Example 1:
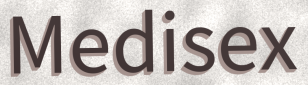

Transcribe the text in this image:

Medisex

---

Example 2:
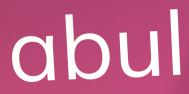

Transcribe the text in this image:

abul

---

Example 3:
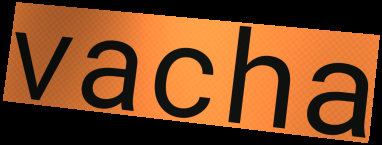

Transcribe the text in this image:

vacha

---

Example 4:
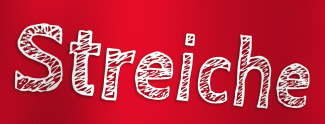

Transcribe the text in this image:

Streiche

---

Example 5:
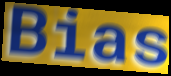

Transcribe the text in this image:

Bias